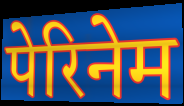
पेरिनेम